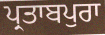
ਪ੍ਰਤਾਬਪੁਰਾ